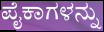
ಪೈಕಾಗಳನ್ನು